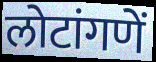
लोटांगणें